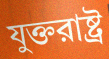
যুক্তরাষ্ট্র